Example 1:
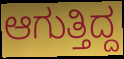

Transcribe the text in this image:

ಆಗುತ್ತಿದ್ದ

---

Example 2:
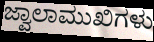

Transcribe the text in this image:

ಜ್ವಾಲಾಮುಖಿಗಳು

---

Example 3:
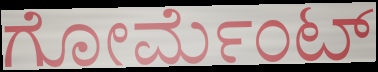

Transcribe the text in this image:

ಗೋರ್ಮೆಂಟ್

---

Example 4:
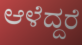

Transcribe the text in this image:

ಆಳೆದ್ದರೆ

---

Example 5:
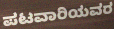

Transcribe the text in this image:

ಪಟವಾರಿಯವರ